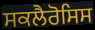
ਸਕਲੈਰੋਸਿਸ